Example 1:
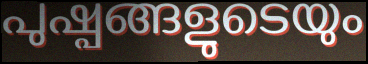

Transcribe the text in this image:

പുഷ്പങ്ങളുടെയും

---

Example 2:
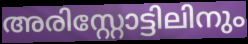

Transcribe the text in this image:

അരിസ്റ്റോട്ടിലിനും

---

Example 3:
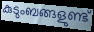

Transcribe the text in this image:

കുടുംബങ്ങളുണ്ട്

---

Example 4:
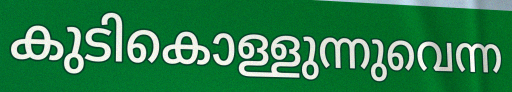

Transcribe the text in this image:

കുടികൊള്ളുന്നുവെന്ന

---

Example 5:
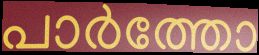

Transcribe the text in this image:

പാർത്തോ